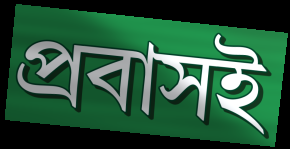
প্রবাসই